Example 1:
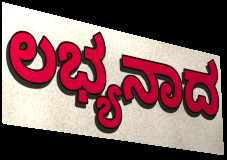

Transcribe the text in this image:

ಲಭ್ಯನಾದ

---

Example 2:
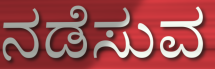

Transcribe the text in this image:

ನಡೆಸುವ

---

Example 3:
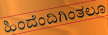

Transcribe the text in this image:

ಹಿಂದೆಂದಿಗಿಂತಲೂ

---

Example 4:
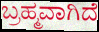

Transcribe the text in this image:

ಬ್ರಹ್ಮವಾಗಿದೆ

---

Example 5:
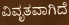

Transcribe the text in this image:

ವಿವೃತವಾಗಿದೆ